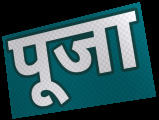
पूजा